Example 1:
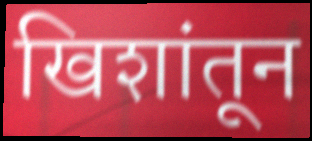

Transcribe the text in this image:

खिशांतून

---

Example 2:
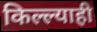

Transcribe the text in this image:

किल्ल्याही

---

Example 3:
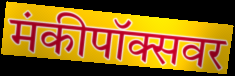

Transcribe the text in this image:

मंकीपॉक्सवर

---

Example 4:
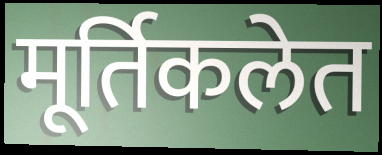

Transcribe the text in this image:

मूर्तिकलेत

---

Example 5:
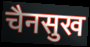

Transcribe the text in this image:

चैनसुख